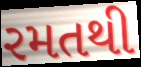
રમતથી